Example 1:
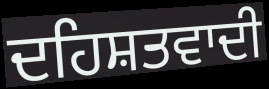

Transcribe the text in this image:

ਦਹਿਸ਼ਤਵਾਦੀ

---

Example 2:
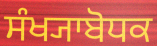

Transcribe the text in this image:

ਸੰਖ੍ਯਾਬੋਧਕ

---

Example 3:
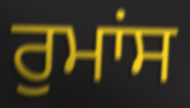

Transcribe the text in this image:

ਰੁਮਾਂਸ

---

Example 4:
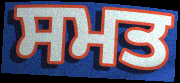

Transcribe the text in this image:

ਸਮਤ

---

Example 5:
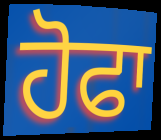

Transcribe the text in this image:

ਹੋਫਾ